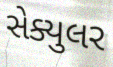
સેક્યુલર